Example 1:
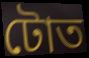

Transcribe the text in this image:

টোত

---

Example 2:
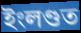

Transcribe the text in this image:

ইংলণ্ডত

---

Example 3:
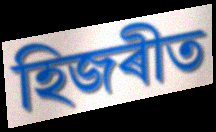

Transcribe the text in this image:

হিজৰীত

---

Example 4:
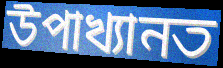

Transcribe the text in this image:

উপাখ্যানত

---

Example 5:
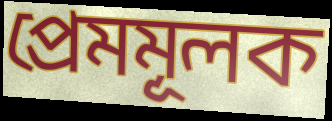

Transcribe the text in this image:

প্ৰেমমূলক